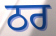
ਠਰ